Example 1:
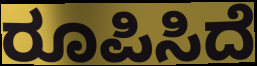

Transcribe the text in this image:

ರೂಪಿಸಿದೆ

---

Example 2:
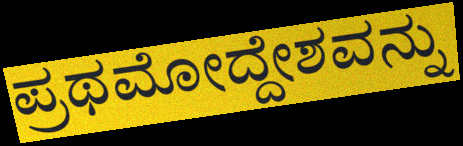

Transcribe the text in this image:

ಪ್ರಥಮೋದ್ದೇಶವನ್ನು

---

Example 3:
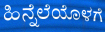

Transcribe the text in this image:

ಹಿನ್ನೆಲೆಯೊಳಗೆ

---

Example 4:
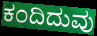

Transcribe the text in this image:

ಕಂದಿದುವು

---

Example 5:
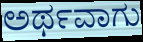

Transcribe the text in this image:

ಅರ್ಥವಾಗು